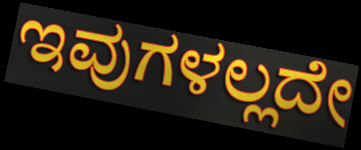
ಇವುಗಳಲ್ಲದೇ